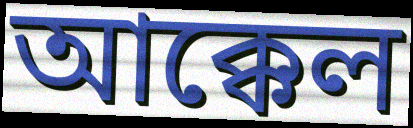
আক্কেল